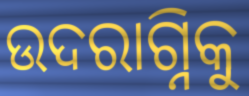
ଉଦରାଗ୍ନିକୁ